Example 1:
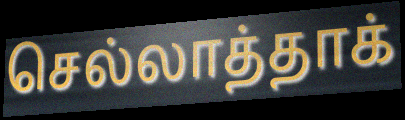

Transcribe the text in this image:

செல்லாத்தாக்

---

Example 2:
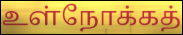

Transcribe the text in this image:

உள்நோக்கத்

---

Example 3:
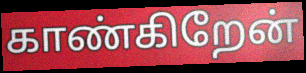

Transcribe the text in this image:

காண்கிறேன்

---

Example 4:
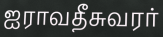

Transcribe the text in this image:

ஐராவதீசுவரர்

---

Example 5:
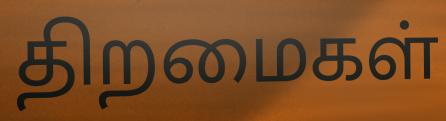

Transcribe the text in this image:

திறமைகள்